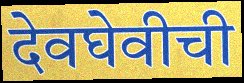
देवघेवीची